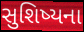
સુશિષ્યના